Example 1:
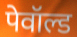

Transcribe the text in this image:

पेवॉल्ड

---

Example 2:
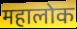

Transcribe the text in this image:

महालोक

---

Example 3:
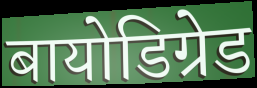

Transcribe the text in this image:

बायोडिग्रेड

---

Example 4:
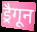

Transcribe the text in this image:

ड्रैगून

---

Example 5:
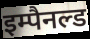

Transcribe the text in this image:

इम्पैनल्ड